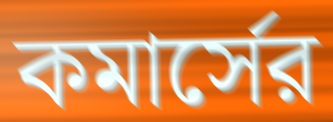
কমার্সের